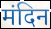
मंदिन